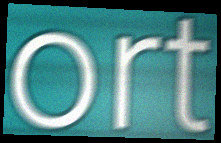
ort